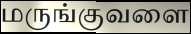
மருங்குவளை